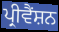
ਪ੍ਰੀਵੈਂਸ਼ਨ